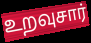
உறவுசார்